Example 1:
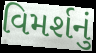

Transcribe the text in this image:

વિમર્શનું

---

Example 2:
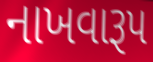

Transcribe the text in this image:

નાખવારૂપ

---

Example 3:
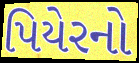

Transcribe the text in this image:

પિયેરનો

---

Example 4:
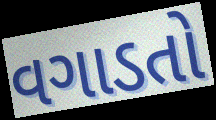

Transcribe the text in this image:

વગાડતો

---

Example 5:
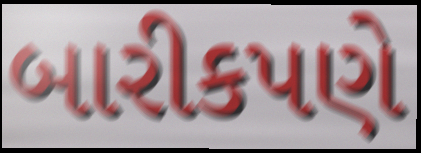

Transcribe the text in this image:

બારીકપણે